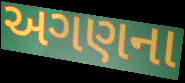
અગણના